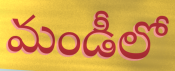
మండీలో